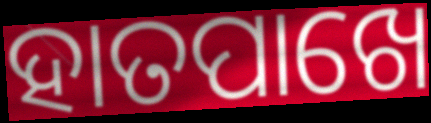
ହାତପାଖେ